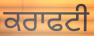
ਕਰਾਫਟੀ